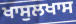
ਖਾਸੁਲਖਾਸ